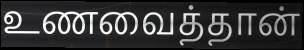
உணவைத்தான்